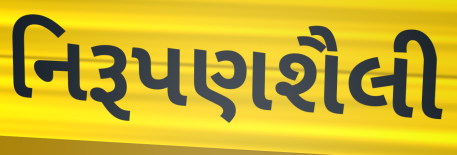
નિરૂપણશૈલી